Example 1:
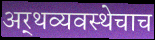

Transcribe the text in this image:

अर्थव्यवस्थेचाच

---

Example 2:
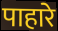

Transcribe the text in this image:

पाहारे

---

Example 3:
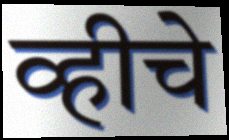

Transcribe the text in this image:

व्हीचे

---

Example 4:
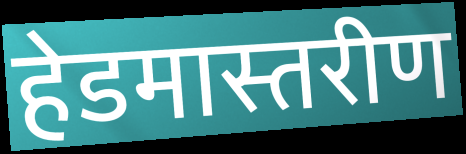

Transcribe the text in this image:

हेडमास्तरीण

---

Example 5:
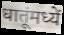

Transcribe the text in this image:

धातूंमध्यें